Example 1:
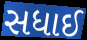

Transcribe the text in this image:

સધાઈ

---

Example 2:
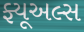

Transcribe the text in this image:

ફ્યૂઅલ્સ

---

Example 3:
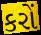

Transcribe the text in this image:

કરોં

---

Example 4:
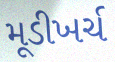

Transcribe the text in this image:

મૂડીખર્ચ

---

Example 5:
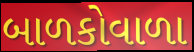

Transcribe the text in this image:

બાળકોવાળા